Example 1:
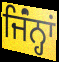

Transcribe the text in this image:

ਜਿੰਂਨ੍ਹਾਂ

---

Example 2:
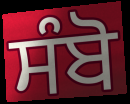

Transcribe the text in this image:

ਸੰਬੋ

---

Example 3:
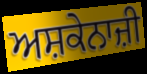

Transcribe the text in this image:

ਅਸ਼ਕੇਨਾਜ਼ੀ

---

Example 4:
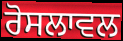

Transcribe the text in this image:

ਰੋਸਲਾਵਲ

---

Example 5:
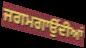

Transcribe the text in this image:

ਜਗਮਗਾਉਂਦੀਆਂ